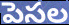
పెసల